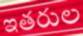
ఇతరుల